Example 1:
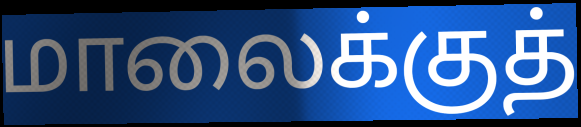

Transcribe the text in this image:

மாலைக்குத்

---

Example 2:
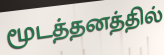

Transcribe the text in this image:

மூடத்தனத்தில்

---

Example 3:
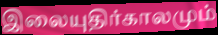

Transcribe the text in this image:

இலையுதிர்காலமும்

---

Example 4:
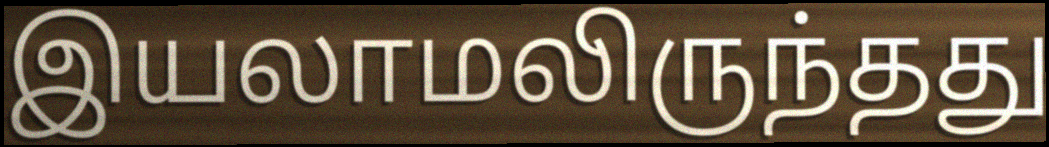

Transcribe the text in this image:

இயலாமலிருந்தது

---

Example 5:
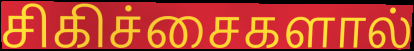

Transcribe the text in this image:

சிகிச்சைகளால்